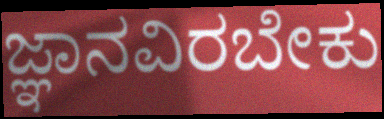
ಜ್ಞಾನವಿರಬೇಕು